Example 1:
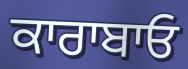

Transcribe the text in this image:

ਕਾਰਾਬਾਓ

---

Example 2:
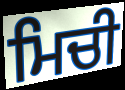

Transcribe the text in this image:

ਮਿਚੀ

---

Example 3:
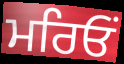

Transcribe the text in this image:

ਮਰਿਓਂ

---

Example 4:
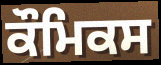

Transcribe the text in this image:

ਕੌਮਿਕਸ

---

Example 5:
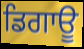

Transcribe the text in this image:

ਡਿਗਾਊ